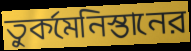
তুর্কমেনিস্তানের